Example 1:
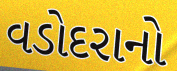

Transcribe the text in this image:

વડોદરાનો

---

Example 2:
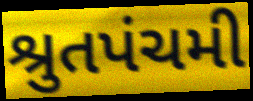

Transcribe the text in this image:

શ્રુતપંચમી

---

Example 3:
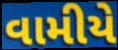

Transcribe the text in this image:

વામીયે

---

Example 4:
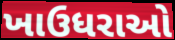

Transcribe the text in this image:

ખાઉધરાઓ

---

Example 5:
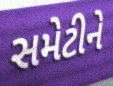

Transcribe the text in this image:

સમેટીને